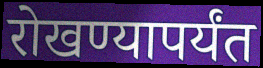
रोखण्यापर्यंत